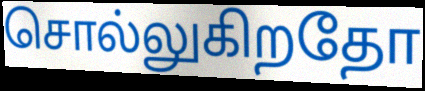
சொல்லுகிறதோ